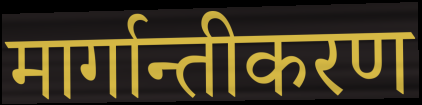
मार्गान्तीकरण